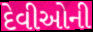
દેવીઓની